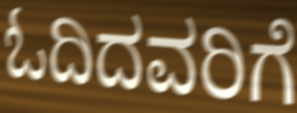
ಓದಿದವರಿಗೆ